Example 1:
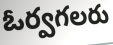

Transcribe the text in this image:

ఓర్వగలరు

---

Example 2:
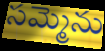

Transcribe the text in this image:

సమ్మెను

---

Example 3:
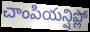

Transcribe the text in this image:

చాంపియన్షిప్లో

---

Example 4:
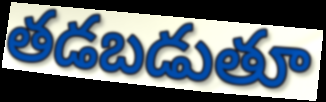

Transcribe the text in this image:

తడబడుతూ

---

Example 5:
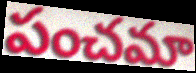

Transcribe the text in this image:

పంచమా